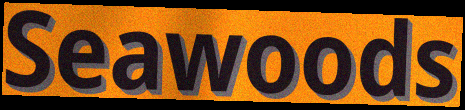
Seawoods